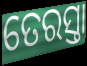
ତେରସ୍ତା